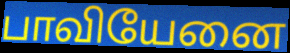
பாவியேனை